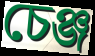
চেঞ্জ